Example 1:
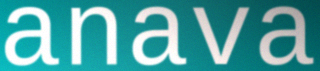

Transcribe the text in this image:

anava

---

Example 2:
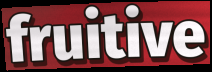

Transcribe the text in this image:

fruitive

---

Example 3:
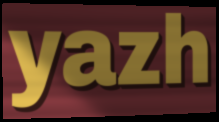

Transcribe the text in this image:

yazh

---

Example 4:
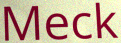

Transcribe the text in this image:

Meck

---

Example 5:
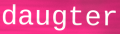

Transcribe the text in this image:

daugter